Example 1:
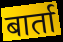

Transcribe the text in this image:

बार्ता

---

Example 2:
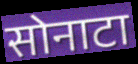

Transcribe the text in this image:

सोनाटा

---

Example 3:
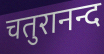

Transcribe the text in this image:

चतुरानन्द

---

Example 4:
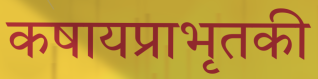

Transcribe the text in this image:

कषायप्राभृतकी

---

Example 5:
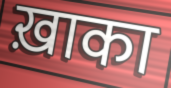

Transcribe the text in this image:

ख़ाका